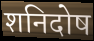
शनिदोष